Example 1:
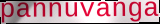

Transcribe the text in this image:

pannuvanga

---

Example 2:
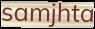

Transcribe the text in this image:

samjhta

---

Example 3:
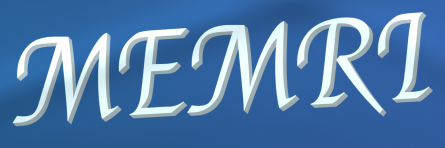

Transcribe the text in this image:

MEMRI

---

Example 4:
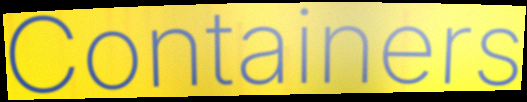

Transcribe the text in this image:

Containers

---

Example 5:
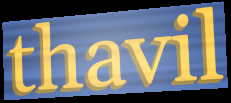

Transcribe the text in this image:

thavil